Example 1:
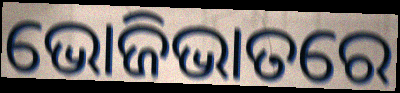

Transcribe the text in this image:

ଭୋଜିଭାତରେ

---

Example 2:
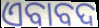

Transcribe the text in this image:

ଏବାବଦ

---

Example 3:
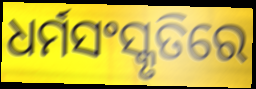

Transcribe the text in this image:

ଧର୍ମସଂସ୍କୃତିରେ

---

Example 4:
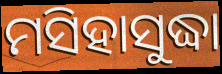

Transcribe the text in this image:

ମସିହାସୁଦ୍ଧା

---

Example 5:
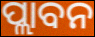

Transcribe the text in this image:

ପ୍ଲାବନ